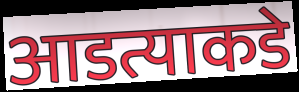
आडत्याकडे